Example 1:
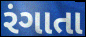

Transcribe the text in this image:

રંગાતા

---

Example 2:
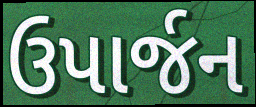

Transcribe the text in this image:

ઉપાર્જન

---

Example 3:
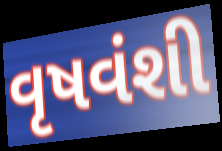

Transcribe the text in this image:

વૃષવંશી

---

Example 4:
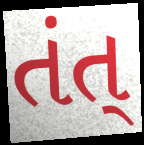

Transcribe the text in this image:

તંત્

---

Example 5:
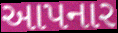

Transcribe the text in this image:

આપનાર